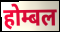
होम्बल